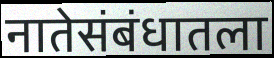
नातेसंबंधातला